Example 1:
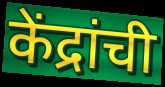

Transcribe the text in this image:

केंद्रांची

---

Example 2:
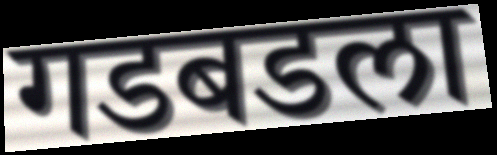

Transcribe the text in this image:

गडबडला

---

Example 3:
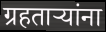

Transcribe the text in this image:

ग्रहताऱ्यांना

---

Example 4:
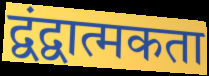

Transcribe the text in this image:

द्वंद्वात्मकता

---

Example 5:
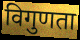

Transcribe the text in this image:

विगुणता